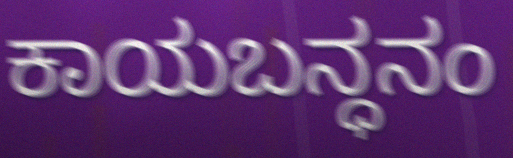
ಕಾಯಬನ್ಧನಂ